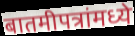
बातमीपत्रांमध्ये